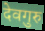
देवगुरु